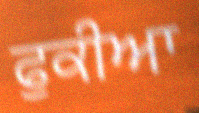
ਫੁਕੀਆ